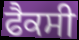
ਫੈਕਸੀ